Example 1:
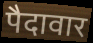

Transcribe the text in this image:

पैदावार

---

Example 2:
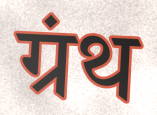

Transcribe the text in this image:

ग्रंथ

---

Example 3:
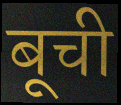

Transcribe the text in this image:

बूची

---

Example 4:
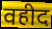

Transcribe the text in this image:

वहीद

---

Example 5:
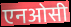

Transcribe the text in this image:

एनओसी